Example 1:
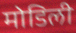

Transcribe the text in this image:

मोडिली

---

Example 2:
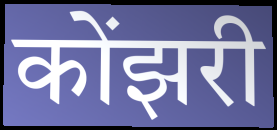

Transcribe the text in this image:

कोंझरी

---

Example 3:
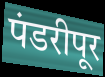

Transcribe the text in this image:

पंडरीपूर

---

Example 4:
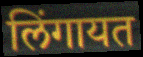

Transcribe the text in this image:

लिंगायत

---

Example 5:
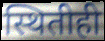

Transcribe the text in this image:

स्थितीही